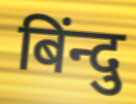
बिंन्दु